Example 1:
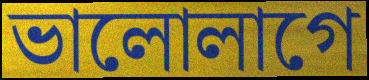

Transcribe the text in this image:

ভালোলাগে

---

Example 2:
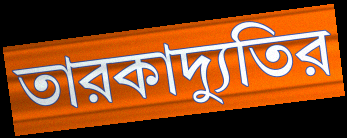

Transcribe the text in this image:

তারকাদ্যুতির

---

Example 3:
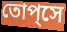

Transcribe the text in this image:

তোপ্‌সে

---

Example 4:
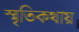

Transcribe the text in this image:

স্মৃতিকথায়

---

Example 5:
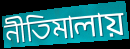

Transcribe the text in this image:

নীতিমালায়